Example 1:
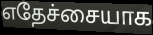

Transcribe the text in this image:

எதேச்சையாக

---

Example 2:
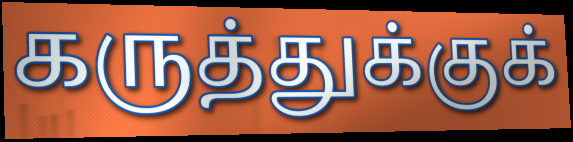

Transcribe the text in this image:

கருத்துக்குக்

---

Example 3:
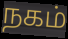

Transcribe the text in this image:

நகம்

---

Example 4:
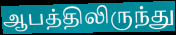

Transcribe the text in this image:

ஆபத்திலிருந்து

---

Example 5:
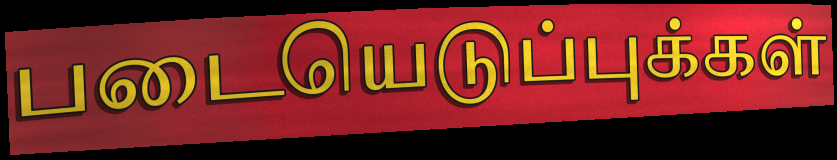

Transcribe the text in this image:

படையெடுப்புக்கள்